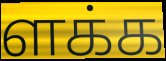
ளக்க